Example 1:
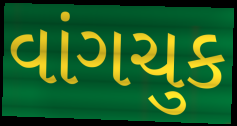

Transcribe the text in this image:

વાંગચુક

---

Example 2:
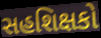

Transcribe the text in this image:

સહશિક્ષકો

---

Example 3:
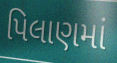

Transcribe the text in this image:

પિલાણમાં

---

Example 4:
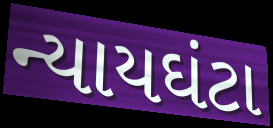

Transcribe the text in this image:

ન્યાયઘંટા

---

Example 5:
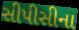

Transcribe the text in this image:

સીપીસીના